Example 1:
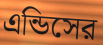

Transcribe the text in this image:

এন্ডিসের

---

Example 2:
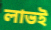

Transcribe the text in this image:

লাভই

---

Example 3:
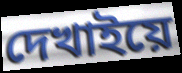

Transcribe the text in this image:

দেখাইয়ে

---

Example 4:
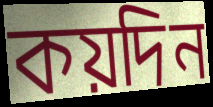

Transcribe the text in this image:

কয়দিন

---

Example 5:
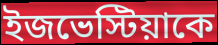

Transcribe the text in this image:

ইজভেস্টিয়াকে